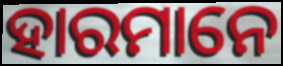
ହାରମାନେ